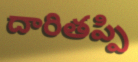
దారితప్పి